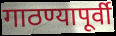
गाठण्यापूर्वी